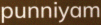
punniyam